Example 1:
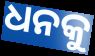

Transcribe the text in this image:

ଧନକୁ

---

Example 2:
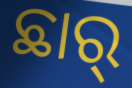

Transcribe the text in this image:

ଛାର୍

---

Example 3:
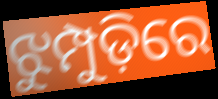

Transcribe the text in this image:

ଝୁମ୍ପୁଡ଼ିରେ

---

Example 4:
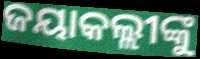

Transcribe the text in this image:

ଜୟାକଲ୍ଲୀଙ୍କୁ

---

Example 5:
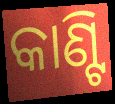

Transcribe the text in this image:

କାଣ୍ଟି